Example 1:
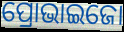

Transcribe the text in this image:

ପ୍ରୋଭାଇଜୋ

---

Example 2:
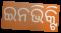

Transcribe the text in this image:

ଇନଭିକ୍ଟି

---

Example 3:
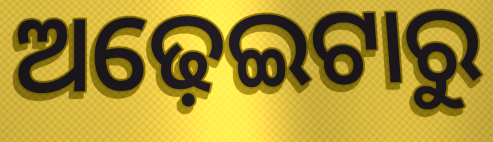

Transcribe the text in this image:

ଅଢ଼େଇଟାରୁ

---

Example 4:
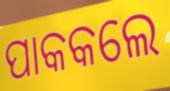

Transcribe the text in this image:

ପାକକଲେ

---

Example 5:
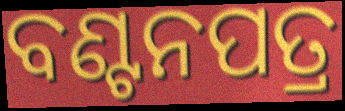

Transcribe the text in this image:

ବଣ୍ଟନପତ୍ର